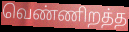
வெண்ணிறத்த